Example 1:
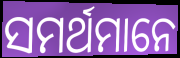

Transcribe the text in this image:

ସମର୍ଥମାନେ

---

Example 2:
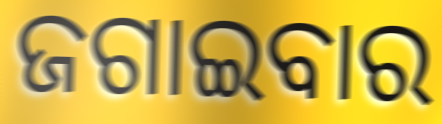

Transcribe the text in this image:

ଜଗାଇବାର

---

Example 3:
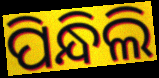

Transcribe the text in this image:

ପିନ୍ଧିଲି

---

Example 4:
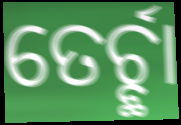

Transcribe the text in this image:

ତେର୍ଚ୍ଛା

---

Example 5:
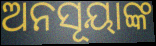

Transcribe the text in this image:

ଅନସୂୟାଙ୍କ